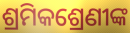
ଶ୍ରମିକଶ୍ରେଣୀଙ୍କ